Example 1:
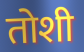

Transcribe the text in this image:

तोशी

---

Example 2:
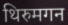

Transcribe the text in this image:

थिरुमगन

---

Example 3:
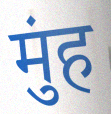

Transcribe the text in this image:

मुंह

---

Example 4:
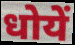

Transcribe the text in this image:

धोयें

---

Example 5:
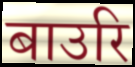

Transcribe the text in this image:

बाउरि